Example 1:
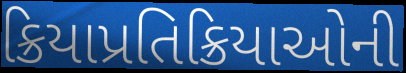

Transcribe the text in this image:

ક્રિયાપ્રતિક્રિયાઓની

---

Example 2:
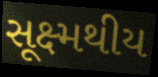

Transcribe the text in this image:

સૂક્ષ્મથીય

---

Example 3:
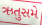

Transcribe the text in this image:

ઋતુસમે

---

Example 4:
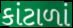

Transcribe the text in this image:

કાંટાળાં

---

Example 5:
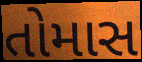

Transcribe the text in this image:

તોમાસ